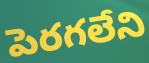
పెరగలేని